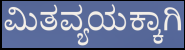
ಮಿತವ್ಯಯಕ್ಕಾಗಿ